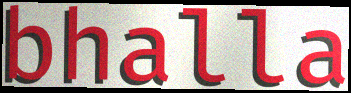
bhalla